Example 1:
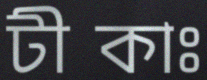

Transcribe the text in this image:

টীকাঃ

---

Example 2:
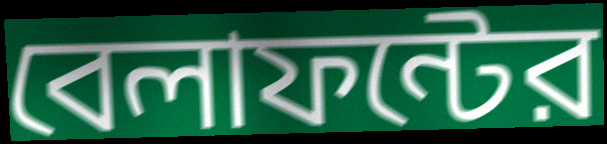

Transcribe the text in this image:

বেলাফন্টের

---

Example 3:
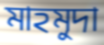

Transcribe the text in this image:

মাহমুদা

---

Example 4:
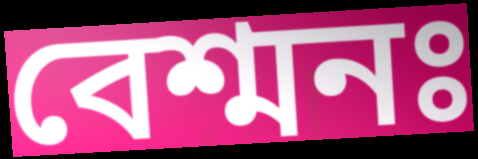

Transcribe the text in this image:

বেশ্মনঃ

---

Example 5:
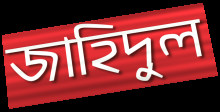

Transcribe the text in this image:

জাহিদুল